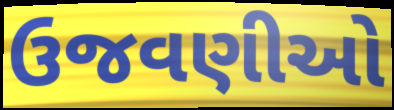
ઉજવણીઓ